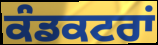
ਕੰਡਕਟਰਾਂ